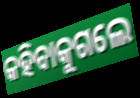
କହିବାକୁଗଲେ